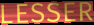
LESSER